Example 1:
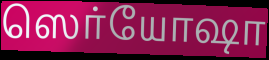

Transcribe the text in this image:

ஸெர்யோஷா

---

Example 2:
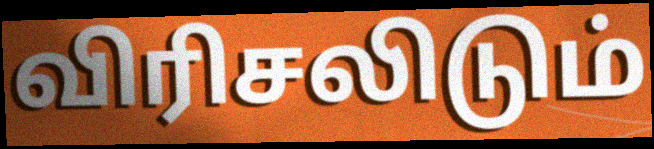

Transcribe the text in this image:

விரிசலிடும்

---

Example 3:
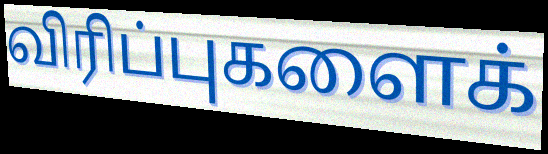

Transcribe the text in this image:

விரிப்புகளைக்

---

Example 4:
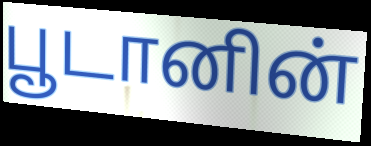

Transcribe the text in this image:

பூடானின்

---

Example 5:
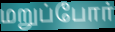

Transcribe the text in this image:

மறுப்போர்